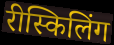
रीस्किलिंग